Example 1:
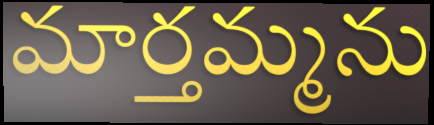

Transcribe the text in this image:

మార్తమ్మను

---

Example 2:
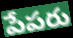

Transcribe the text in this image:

పేపరు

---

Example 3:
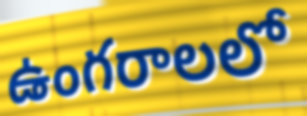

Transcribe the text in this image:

ఉంగరాలలో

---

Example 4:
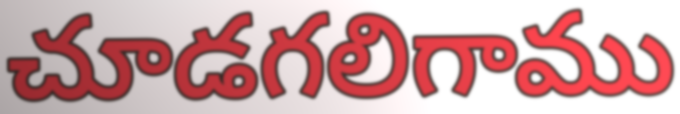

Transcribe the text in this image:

చూడగలిగాము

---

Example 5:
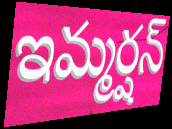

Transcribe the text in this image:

ఇమ్మర్షన్